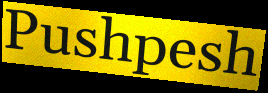
Pushpesh